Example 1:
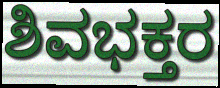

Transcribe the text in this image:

ಶಿವಭಕ್ತರ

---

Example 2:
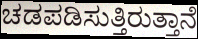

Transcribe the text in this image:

ಚಡಪಡಿಸುತ್ತಿರುತ್ತಾನೆ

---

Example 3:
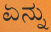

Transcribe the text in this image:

ಏನ್ನು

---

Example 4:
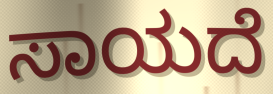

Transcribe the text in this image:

ಸಾಯದೆ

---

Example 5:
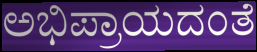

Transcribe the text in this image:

ಅಭಿಪ್ರಾಯದಂತೆ